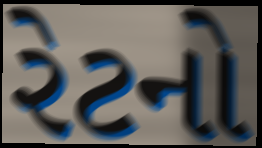
રેટનો